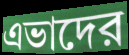
এভাদের